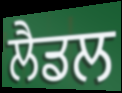
ਲੈਡਲ